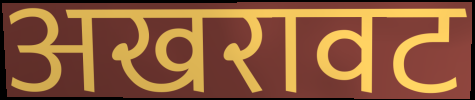
अखरावट